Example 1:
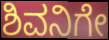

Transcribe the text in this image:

ಶಿವನಿಗೇ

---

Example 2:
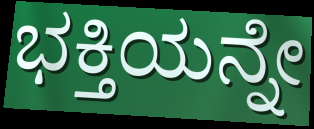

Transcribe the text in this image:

ಭಕ್ತಿಯನ್ನೇ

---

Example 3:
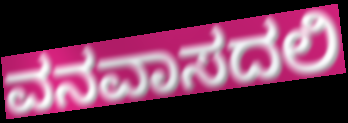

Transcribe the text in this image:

ವನವಾಸದಲಿ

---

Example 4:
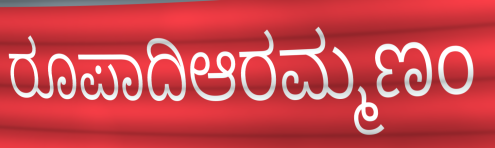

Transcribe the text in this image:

ರೂಪಾದಿಆರಮ್ಮಣಂ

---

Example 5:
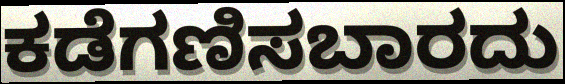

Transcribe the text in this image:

ಕಡೆಗಣಿಸಬಾರದು